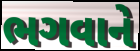
ભગવાને